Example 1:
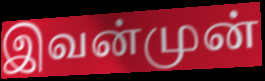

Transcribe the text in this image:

இவன்முன்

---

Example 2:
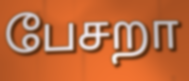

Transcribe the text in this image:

பேசறா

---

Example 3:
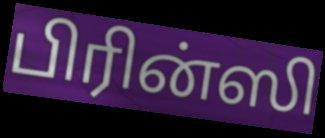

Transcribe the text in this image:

பிரின்ஸி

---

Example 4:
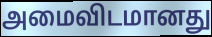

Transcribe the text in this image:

அமைவிடமானது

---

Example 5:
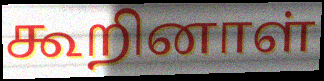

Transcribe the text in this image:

கூறினாள்